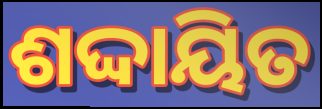
ଶଦ୍ଦାୟିତ